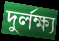
দুর্লক্ষ্য